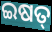
ଇଷତ୍